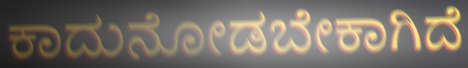
ಕಾದುನೋಡಬೇಕಾಗಿದೆ